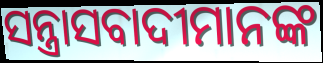
ସନ୍ତ୍ରାସବାଦୀମାନଙ୍କ